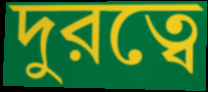
দুরত্বে